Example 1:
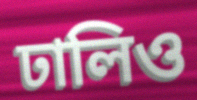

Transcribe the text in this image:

ঢালিও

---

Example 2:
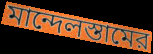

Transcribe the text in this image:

মান্দেলস্তামের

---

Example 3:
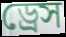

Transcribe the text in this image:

ড্রেস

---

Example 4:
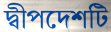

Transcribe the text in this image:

দ্বীপদেশটি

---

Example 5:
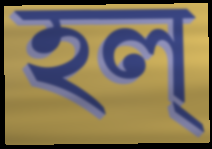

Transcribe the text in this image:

হল্